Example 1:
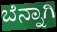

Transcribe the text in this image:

ಬೆನ್ನಾಗಿ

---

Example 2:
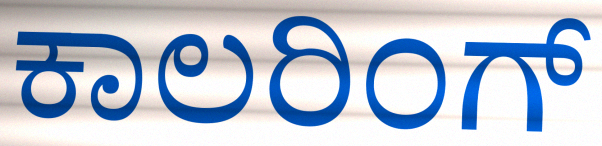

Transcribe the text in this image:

ಕಾಲರಿಂಗ್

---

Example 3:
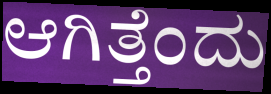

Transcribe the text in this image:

ಆಗಿತ್ತೆಂದು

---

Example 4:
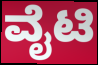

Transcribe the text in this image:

ವೈಟಿ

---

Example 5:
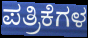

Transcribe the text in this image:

ಪತ್ರಿಕೆಗಳ